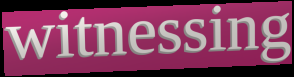
witnessing